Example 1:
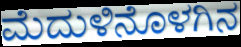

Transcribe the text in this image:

ಮೆದುಳಿನೊಳಗಿನ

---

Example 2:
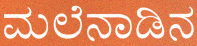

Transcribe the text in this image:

ಮಲೆನಾಡಿನ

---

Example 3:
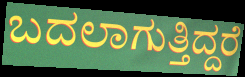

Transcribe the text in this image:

ಬದಲಾಗುತ್ತಿದ್ದರೆ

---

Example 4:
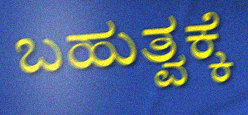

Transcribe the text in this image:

ಬಹುತ್ವಕ್ಕೆ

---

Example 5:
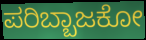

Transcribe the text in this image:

ಪರಿಬ್ಬಾಜಕೋ